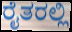
ರೈತರಲ್ಲಿ